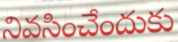
నివసించేందుకు